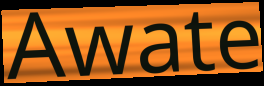
Awate